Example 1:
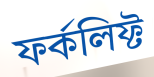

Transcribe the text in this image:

ফর্কলিফ্ট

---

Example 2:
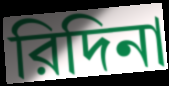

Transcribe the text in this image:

রিদিনা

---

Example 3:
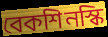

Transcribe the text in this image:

বেকশিনস্কি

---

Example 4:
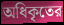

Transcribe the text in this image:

অধিকৃতের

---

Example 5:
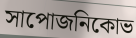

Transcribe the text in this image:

সাপোজনিকোভ